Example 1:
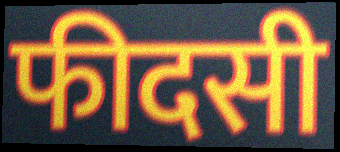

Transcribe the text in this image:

फीदसी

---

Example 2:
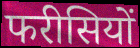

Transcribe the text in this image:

फरीसियों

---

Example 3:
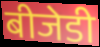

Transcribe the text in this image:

बीजेडी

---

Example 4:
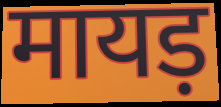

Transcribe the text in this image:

मायड़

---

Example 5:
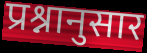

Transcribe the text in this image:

प्रश्नानुसार